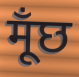
मूँछ